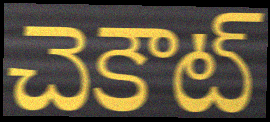
చెకౌట్